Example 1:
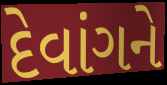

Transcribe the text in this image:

દેવાંગને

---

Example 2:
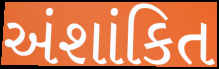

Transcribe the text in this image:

અંશાંકિત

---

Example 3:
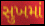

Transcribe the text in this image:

સુખમાં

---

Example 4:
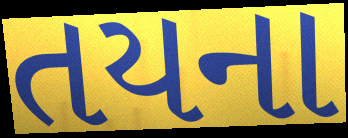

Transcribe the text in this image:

તયના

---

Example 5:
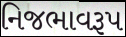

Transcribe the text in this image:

નિજભાવરૂપ